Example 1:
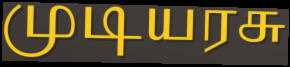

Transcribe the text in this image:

முடியரசு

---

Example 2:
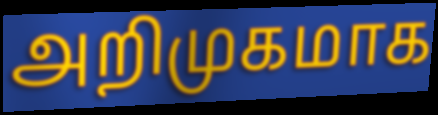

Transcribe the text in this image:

அறிமுகமாக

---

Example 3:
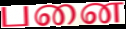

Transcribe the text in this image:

பனை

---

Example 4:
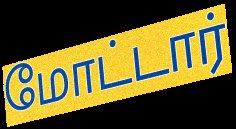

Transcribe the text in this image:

மோட்டார்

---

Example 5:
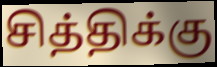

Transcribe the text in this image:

சித்திக்கு